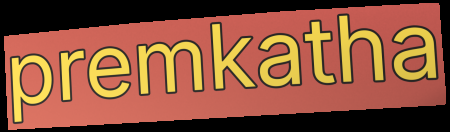
premkatha